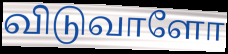
விடுவாளோ